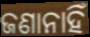
ଜଣାନାହିଁ